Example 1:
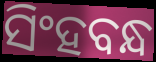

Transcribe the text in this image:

ସିଂହବନ୍ଧ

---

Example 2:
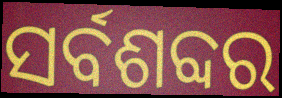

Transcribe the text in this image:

ସର୍ବଶବ୍ଦର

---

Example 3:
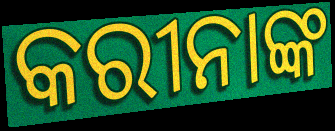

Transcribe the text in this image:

କରୀନାଙ୍କ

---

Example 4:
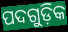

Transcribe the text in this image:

ପଦଗୁଡ଼ିକ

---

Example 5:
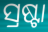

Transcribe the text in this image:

ସ୍ରଷ୍ଟା